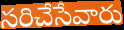
సరిచేసేవారు